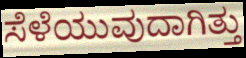
ಸೆಳೆಯುವುದಾಗಿತ್ತು